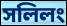
সলিলং